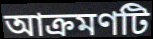
আক্রমণটি